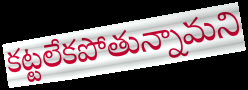
కట్టలేకపోతున్నామని